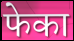
फेका